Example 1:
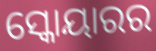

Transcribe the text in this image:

ସ୍କୋୟାରର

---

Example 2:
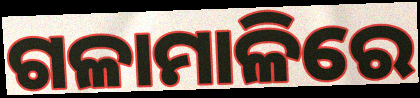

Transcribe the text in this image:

ଗଳାମାଳିରେ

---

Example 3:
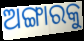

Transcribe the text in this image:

ଅଙ୍ଗାରକୁ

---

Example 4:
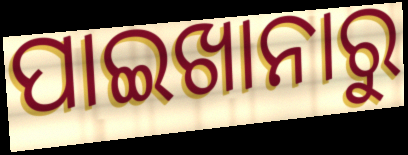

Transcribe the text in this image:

ପାଇଖାନାରୁ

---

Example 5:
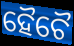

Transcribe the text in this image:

ହୈଚୈ